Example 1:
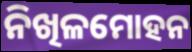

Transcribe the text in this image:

ନିଖିଳମୋହନ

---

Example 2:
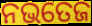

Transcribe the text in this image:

ନଭତେଜ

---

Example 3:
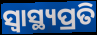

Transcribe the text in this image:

ସ୍ବାସ୍ଥ୍ୟପ୍ରତି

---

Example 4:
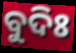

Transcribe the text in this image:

ବୁଦିଃ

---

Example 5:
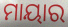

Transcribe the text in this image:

ମାୟାର